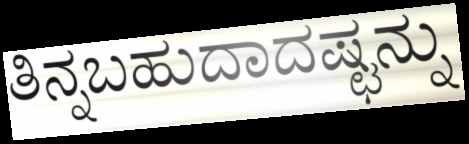
ತಿನ್ನಬಹುದಾದಷ್ಟನ್ನು